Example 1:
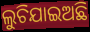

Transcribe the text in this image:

ଲୁଚିଯାଇଅଛି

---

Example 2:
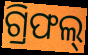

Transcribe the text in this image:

ଗ୍ରିଫଲ୍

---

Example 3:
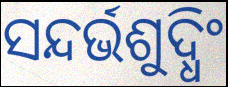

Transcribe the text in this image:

ସନ୍ଦର୍ଭଶୁଦ୍ଧିଂ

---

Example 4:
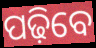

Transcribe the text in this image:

ପଢ଼ିବେ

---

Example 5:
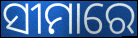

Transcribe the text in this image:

ସୀମାରେ